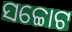
ସଚ୍ଚୋଟ